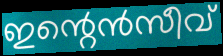
ഇന്റെൻസീവ്